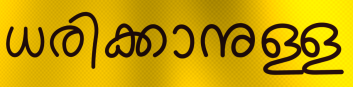
ധരിക്കാനുള്ള